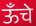
ऊँचे